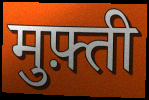
मुफ़्ती